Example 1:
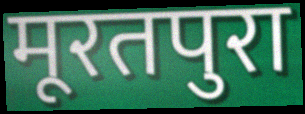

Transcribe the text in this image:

मूरतपुरा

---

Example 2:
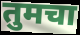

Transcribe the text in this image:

तुमचा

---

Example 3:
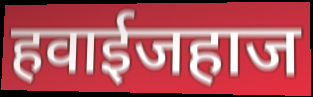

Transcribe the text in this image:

हवाईजहाज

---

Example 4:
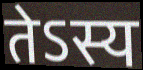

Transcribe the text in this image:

तेऽस्य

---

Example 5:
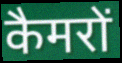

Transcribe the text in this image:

कैमरों